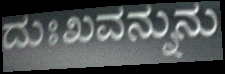
ದುಃಖವನ್ನುನು